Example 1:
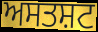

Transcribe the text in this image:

ਅਸਤਸ਼ਟ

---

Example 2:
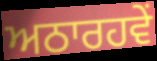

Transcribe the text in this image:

ਅਠਾਰਹਵੇਂ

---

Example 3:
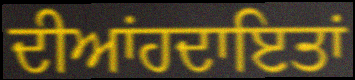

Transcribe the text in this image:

ਦੀਆਂਹਦਾਇਤਾਂ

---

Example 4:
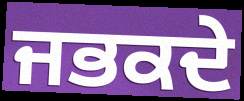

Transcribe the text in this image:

ਜਭਕਦੇ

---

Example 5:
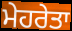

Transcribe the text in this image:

ਮੇਹਰੇਤਾ